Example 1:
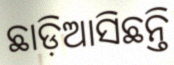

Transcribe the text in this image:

ଛାଡ଼ିଆସିଛନ୍ତି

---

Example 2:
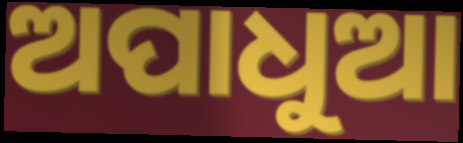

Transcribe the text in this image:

ଅପାଧୁଆ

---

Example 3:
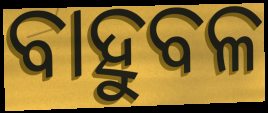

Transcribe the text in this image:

ବାହୁବଳ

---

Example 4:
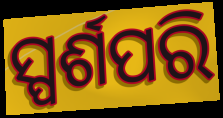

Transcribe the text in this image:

ସ୍ପର୍ଶପରି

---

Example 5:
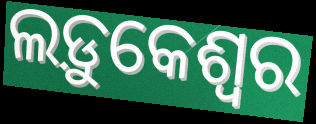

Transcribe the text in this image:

ଲଡ଼ୁକେଶ୍ୱର